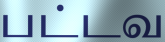
பட்டவ